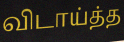
விடாய்த்த